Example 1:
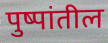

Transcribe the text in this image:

पुष्पांतील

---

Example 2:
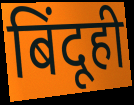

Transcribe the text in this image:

बिंदूही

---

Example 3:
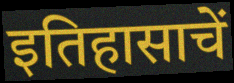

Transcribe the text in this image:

इतिहासाचें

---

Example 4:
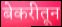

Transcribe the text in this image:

बेकरीतून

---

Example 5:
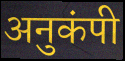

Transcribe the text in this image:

अनुकंपी